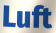
Luft